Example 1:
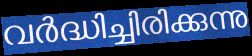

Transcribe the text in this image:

വർദ്ധിച്ചിരിക്കുന്നു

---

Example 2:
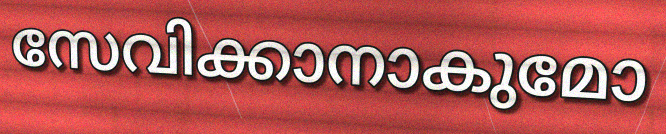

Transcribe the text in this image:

സേവിക്കാനാകുമോ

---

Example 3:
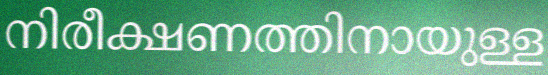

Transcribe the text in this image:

നിരീക്ഷണത്തിനായുള്ള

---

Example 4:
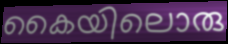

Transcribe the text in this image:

കൈയിലൊരു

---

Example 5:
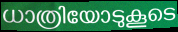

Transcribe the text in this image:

ധാത്രിയോടുകൂടെ